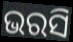
ଭରସି